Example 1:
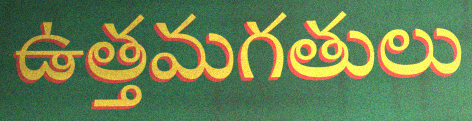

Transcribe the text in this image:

ఉత్తమగతులు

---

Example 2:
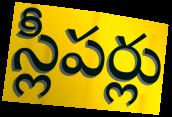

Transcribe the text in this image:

స్లీపర్లు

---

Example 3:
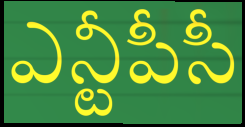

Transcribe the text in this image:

ఎన్టీపీసీ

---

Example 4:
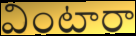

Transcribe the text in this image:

వింటారా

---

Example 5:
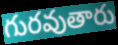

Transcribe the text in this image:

గురవుతారు